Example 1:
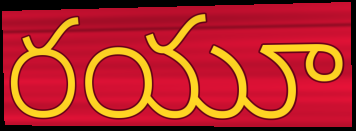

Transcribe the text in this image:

రయూ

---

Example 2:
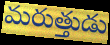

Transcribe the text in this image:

మరుత్తుడు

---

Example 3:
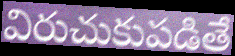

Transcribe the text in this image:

విరుచుకుపడితే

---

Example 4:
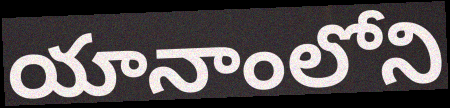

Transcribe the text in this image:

యానాంలోని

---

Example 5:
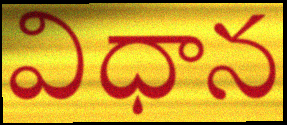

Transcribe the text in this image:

విధాన